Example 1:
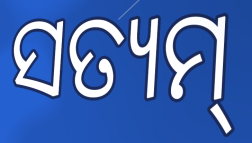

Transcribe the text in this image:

ସତ୍ୟମ୍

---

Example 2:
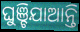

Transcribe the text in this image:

ଘୁଞ୍ଚିଯାଆନ୍ତି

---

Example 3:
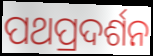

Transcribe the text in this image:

ପଥପ୍ରଦର୍ଶନ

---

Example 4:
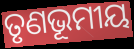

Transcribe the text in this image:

ତୃଣଭୂମୀୟ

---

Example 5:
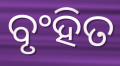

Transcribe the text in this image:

ବୃଂହିତ